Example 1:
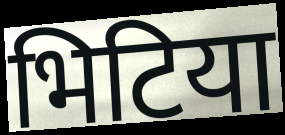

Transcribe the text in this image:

भिटिया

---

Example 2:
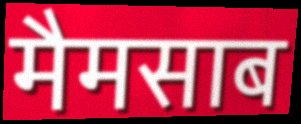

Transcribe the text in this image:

मैमसाब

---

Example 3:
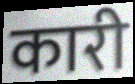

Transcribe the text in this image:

कारी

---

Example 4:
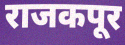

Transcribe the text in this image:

राजकपूर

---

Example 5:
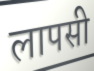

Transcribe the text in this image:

लापसी